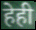
हेही